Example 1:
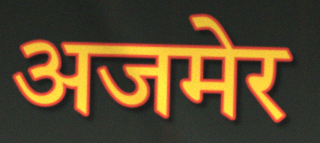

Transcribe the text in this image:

अजमेर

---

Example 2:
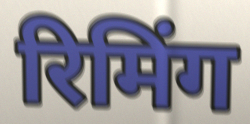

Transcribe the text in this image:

रिमिंग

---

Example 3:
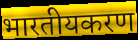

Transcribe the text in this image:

भारतीयकरण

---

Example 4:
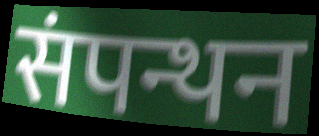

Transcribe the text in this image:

संपन्थन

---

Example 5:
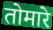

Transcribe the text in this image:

तोमारे